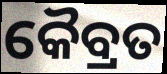
କୈବ୍ରତ